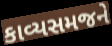
કાવ્યસમજને